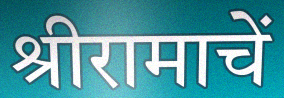
श्रीरामाचें